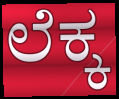
ಲೆಕ್ಕ